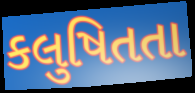
કલુષિતતા